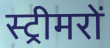
स्ट्रीमरों